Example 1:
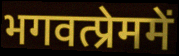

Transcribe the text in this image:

भगवत्प्रेममें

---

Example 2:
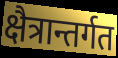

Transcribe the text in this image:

क्षैत्रान्तर्गत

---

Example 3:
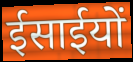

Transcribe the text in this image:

ईसाईयों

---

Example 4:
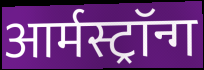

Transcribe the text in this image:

आर्मस्ट्रॉन्ग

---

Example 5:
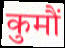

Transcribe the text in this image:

कुमौं